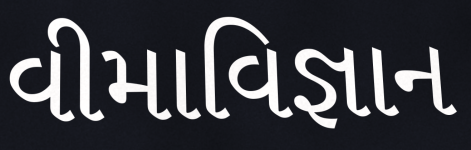
વીમાવિજ્ઞાન